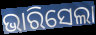
ଭାରିସେଲା